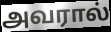
அவரால்